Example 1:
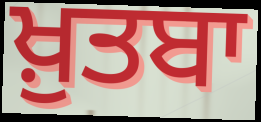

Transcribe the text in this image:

ਖ਼ੁਤਬਾ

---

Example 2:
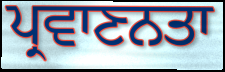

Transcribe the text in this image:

ਪ੍ਰਵਾਣਨਤਾ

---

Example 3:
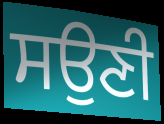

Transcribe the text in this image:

ਸਉਣੀ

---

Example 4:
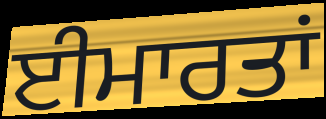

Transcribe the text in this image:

ਈਮਾਰਤਾਂ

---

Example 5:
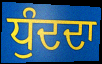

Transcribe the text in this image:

ਧੁੰਦਦਾ